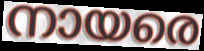
നായരെ